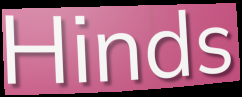
Hinds